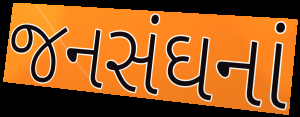
જનસંઘનાં